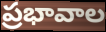
ప్రభావాల